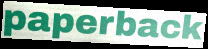
paperback